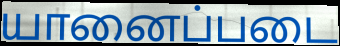
யானைப்படை